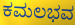
ಕಮಲಭವ